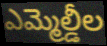
ఎమ్మెల్డీల